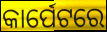
କାର୍ପେଟରେ